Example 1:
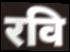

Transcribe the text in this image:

रवि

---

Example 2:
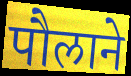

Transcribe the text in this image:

पौलाने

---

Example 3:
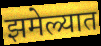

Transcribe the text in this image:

झमेल्यात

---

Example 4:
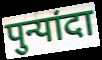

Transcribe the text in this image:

पुन्यांदा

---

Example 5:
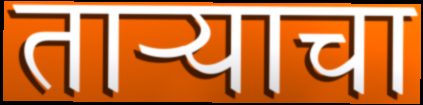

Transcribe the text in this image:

ताऱ्याचा